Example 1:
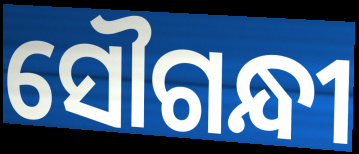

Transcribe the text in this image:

ସୌଗନ୍ଧୀ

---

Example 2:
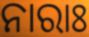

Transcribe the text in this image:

ନାରାଃ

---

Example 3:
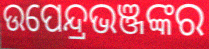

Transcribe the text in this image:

ଉପେନ୍ଦ୍ରଭଞ୍ଜଙ୍କର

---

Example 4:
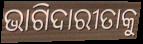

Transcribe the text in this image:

ଭାଗିଦାରୀତାକୁ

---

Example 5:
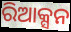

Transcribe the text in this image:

ରିଆକ୍ସନ